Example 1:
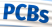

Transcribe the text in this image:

PCBs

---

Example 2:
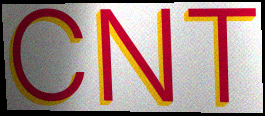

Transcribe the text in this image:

CNT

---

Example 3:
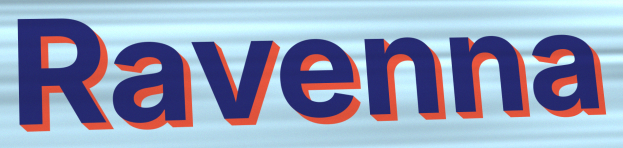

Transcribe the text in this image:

Ravenna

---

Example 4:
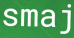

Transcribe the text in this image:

smaj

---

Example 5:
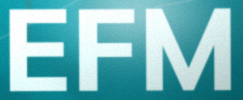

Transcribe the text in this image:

EFM